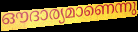
ഔദാര്യമാണെന്നു